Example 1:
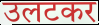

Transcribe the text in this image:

उलटकर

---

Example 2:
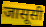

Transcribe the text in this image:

जासूसी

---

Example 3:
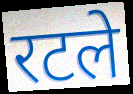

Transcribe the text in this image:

रटले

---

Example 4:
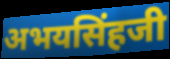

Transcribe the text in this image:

अभयसिंहजी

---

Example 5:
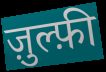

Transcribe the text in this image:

ज़ुल्फ़ी